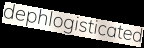
dephlogisticated